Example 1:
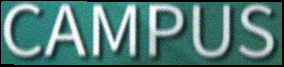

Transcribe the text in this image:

CAMPUS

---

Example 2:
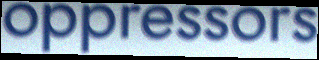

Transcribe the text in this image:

oppressors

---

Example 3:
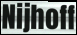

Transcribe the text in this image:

Nijhoff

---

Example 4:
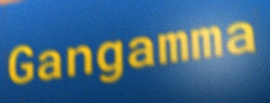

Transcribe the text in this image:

Gangamma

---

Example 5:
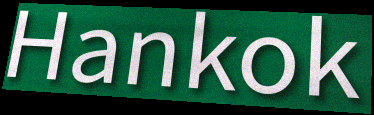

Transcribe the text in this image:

Hankok